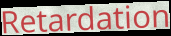
Retardation